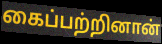
கைப்பற்றினான்